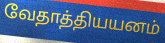
வேதாத்தியயனம்